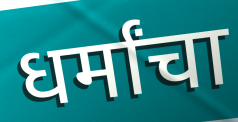
धर्मांचा